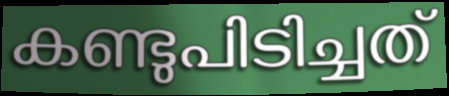
കണ്ടുപിടിച്ചത്